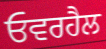
ਓਵਰਹੈਲ